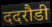
ददरौडी